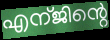
എന്ജിന്റെ